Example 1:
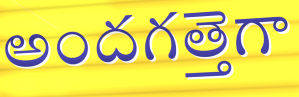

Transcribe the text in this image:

అందగత్తెగా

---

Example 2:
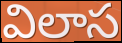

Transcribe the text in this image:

విలాస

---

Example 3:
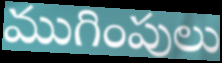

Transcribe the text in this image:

ముగింపులు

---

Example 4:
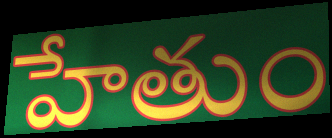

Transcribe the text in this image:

హేతుం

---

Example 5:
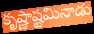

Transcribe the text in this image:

కృష్ణాష్టమినాడు